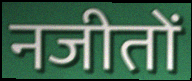
नजीतों